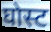
घोस्ट